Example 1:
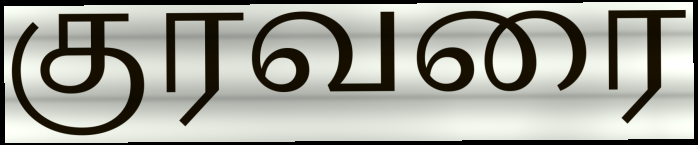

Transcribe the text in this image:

குரவரை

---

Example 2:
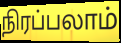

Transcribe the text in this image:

நிரப்பலாம்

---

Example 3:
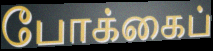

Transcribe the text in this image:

போக்கைப்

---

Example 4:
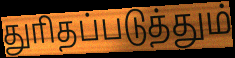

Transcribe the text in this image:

துரிதப்படுத்தும்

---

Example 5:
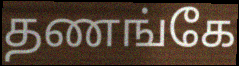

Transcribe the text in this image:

தணங்கே